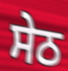
ਸੇਠ